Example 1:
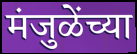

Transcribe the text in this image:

मंजुळेंच्या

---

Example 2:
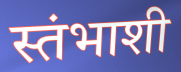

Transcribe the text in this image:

स्तंभाशी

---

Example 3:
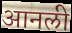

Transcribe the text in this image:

आनली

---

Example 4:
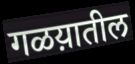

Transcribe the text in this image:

गळय़ातील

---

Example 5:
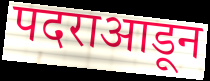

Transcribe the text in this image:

पदराआडून